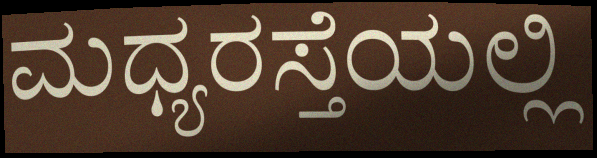
ಮಧ್ಯರಸ್ತೆಯಲ್ಲಿ